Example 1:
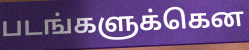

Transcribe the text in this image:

படங்களுக்கென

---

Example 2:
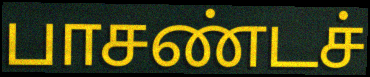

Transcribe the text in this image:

பாசண்டச்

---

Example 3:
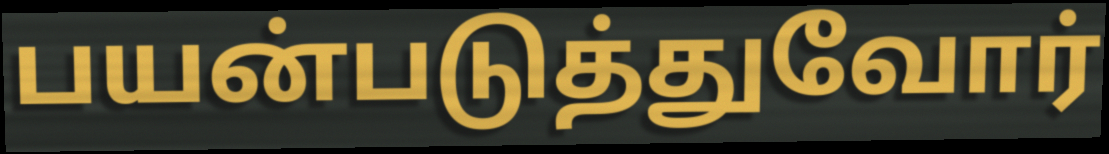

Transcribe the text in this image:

பயன்படுத்துவோர்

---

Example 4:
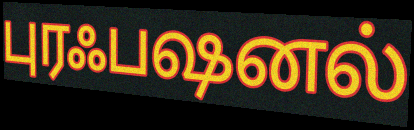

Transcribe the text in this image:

புரஃபஷனல்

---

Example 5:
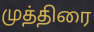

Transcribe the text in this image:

முத்திரை